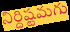
నిర్దిష్టమగు